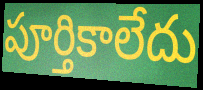
పూర్తికాలేదు